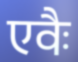
एवैः